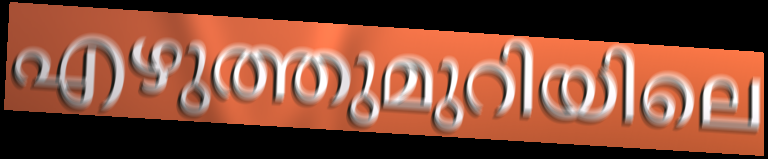
എഴുത്തുമുറിയിലെ